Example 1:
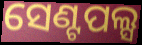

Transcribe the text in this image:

ସେଣ୍ଟପଲ୍ସ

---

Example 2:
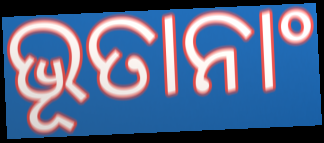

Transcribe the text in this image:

ଭୂତାନାଂ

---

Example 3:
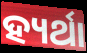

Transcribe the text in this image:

ହ୍ୟର୍ଥା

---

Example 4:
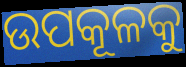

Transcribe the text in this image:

ଉପକୂଳକୁ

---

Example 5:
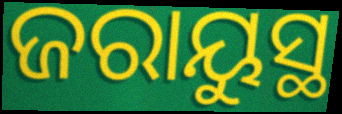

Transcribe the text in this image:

ଜରାୟୁସ୍ଥ